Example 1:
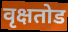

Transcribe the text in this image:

वृक्षतोड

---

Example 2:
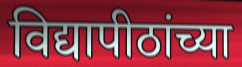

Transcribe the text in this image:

विद्यापीठांच्या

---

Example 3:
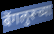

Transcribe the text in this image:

बेंगलुरूच्या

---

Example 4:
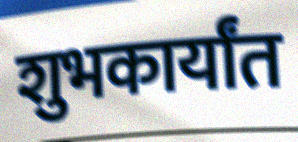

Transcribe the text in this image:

शुभकार्यांत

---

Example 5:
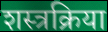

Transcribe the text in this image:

शस्त्रक्रिया